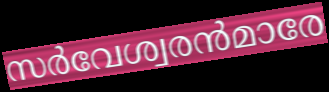
സർവേശ്വരൻമാരേ